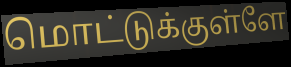
மொட்டுக்குள்ளே